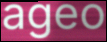
ageo